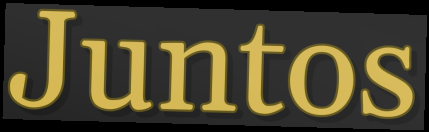
Juntos